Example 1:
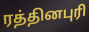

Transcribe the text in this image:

ரத்தினபுரி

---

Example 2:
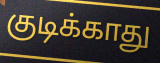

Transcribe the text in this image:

குடிக்காது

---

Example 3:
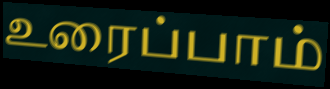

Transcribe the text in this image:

உரைப்பாம்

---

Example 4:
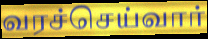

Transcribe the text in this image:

வரச்செய்வார்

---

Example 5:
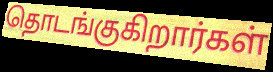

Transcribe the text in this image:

தொடங்குகிறார்கள்